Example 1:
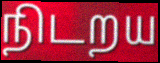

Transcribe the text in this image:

நிடறய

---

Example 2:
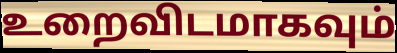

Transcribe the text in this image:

உறைவிடமாகவும்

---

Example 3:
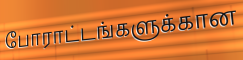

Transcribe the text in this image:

போராட்டங்களுக்கான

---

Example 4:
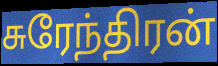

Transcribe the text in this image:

சுரேந்திரன்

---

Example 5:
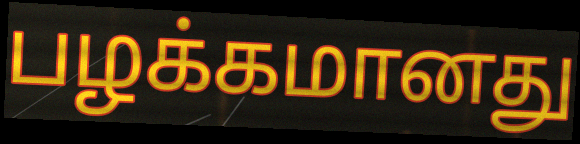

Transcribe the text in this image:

பழக்கமானது